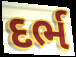
દર્ભ